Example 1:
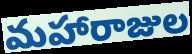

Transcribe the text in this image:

మహారాజుల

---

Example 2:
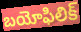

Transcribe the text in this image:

బయోఫిలిక్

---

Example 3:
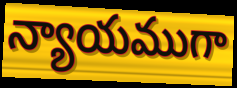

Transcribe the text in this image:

న్యాయముగా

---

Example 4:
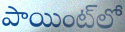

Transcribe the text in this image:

పాయింట్‌లో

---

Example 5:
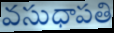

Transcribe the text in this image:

వసుధాపతి